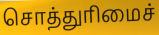
சொத்துரிமைச்